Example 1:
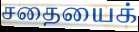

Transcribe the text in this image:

சதையைக்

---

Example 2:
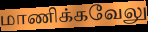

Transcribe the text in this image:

மாணிக்கவேலு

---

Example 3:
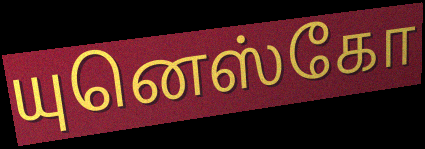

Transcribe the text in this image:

யுனெஸ்கோ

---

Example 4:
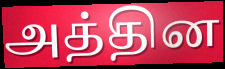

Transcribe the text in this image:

அத்தின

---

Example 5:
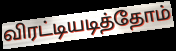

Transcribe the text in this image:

விரட்டியடித்தோம்